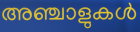
അഞ്ചാളുകൾ